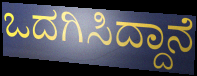
ಒದಗಿಸಿದ್ದಾನೆ